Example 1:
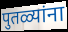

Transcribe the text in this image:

पुतळ्यांना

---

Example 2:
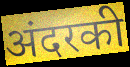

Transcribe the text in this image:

अंदरकी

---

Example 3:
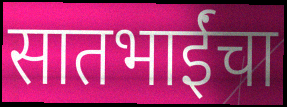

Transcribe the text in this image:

सातभाईंचा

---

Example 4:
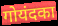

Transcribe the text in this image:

गोयंदका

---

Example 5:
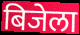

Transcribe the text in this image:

बिजेला